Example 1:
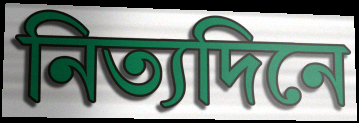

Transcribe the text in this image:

নিত্যদিনে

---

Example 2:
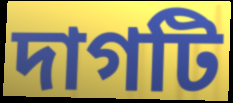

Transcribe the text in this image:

দাগটি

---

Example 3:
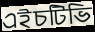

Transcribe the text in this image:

এইচটিভি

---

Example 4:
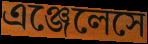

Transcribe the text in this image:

এঞ্জেলেসে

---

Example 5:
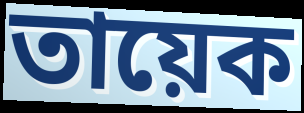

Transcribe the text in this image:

তায়েক